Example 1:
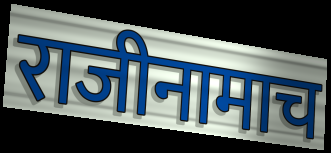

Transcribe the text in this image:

राजीनामाच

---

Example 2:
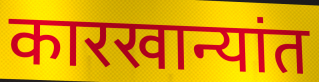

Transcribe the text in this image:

कारखान्यांत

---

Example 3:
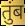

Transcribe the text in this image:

तुंब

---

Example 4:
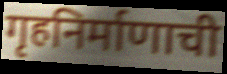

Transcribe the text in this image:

गृहनिर्माणाची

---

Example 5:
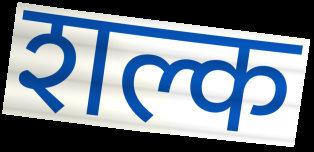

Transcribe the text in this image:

शल्क